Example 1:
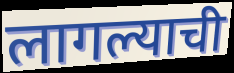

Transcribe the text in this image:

लागल्याची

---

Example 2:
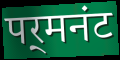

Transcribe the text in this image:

पर्मनंट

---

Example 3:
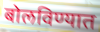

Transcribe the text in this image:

बोलविण्यात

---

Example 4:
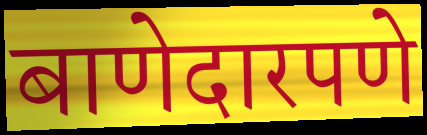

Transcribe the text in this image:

बाणेदारपणे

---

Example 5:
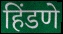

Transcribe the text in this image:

हिंडणे